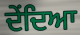
ਦੇਂਦਿਆ